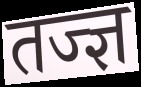
तज्ज्ञ